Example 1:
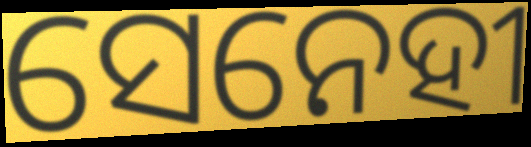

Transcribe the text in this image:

ସେନେହୀ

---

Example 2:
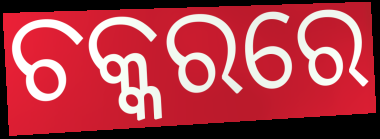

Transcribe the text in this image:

ଚକ୍କରରେ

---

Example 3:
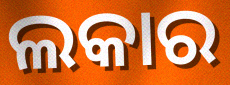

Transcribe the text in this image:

ଲକାର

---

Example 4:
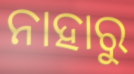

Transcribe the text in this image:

ନାହାରୁ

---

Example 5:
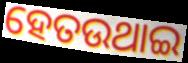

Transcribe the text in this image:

ହେତଉଥାଇ